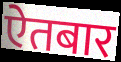
ऐतबार